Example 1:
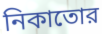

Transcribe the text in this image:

নিকাতোর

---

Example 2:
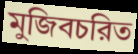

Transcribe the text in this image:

মুজিবচরিত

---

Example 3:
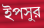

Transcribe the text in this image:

ইপসুর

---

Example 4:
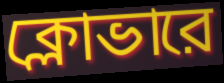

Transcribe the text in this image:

ক্লোভারে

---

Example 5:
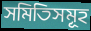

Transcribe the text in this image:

সমিতিসমূহ